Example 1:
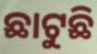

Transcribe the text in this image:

ଛାଟୁଛି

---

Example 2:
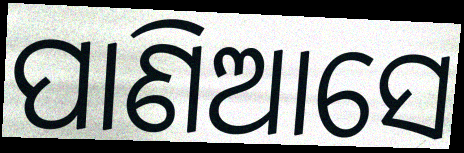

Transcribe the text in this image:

ପାଣିଆସେ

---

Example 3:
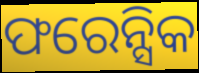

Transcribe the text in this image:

ଫରେନ୍ସିକ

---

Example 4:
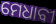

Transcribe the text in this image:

ମେଧାବୀ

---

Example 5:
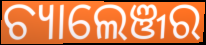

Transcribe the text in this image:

ଚ୍ୟାଲେଞ୍ଜର